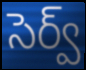
సెర్వ్